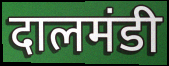
दालमंडी